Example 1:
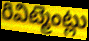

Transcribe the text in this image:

రివిట్మెంట్లు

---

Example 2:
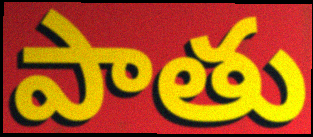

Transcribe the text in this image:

పాతు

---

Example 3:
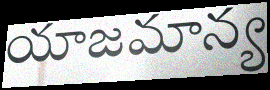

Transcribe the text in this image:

యాజమాన్య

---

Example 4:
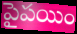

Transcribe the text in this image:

పైపయిం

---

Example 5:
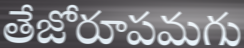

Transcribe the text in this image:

తేజోరూపమగు